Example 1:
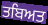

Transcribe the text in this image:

ਤਬਿਅਤ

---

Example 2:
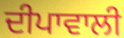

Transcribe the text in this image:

ਦੀਪਾਵਾਲੀ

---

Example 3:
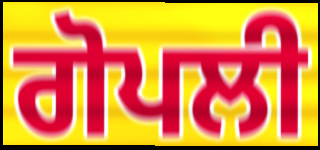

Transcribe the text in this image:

ਗੋਪਲੀ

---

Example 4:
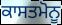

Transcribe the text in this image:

ਕਾਸਤਮੋਨੂ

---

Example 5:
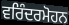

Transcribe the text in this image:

ਵਰਿੰਦਰਮੋਹਨ